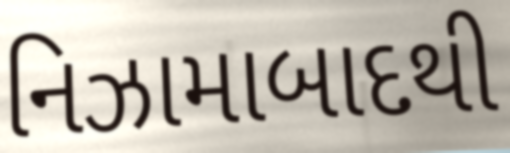
નિઝામાબાદથી